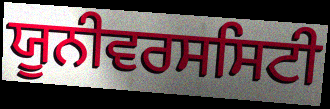
ਯੂਨੀਵਰਸਸਿਟੀ